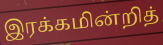
இரக்கமின்றித்